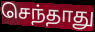
செந்தாது